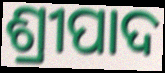
ଶ୍ରୀପାଦ